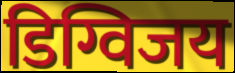
डिग्विजय